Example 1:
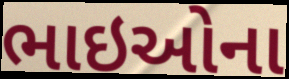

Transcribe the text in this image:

ભાઇઓના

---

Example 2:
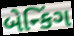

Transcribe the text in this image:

બેન્કિંગ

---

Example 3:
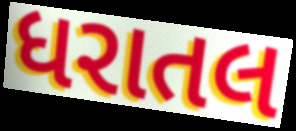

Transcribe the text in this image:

ધરાતલ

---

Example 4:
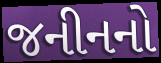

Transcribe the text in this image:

જનીનનો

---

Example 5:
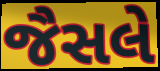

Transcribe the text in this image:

જૈસલે